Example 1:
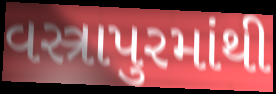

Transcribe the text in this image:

વસ્ત્રાપુરમાંથી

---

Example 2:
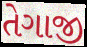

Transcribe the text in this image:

તેગાજી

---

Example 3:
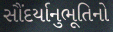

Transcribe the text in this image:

સૌંદર્યાનુભૂતિનો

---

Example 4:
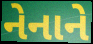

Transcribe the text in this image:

નેનાને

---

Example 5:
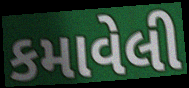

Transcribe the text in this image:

કમાવેલી